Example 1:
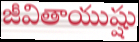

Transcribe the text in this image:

జీవితాయుష్షు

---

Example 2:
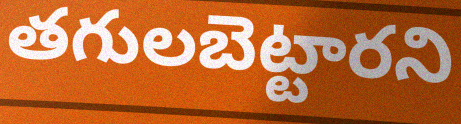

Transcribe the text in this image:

తగులబెట్టారని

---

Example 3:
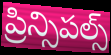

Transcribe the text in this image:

ప్రిన్సిపల్స్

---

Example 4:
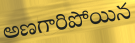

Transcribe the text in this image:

అణగారిపోయిన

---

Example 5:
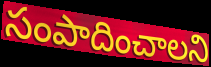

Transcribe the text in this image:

సంపాదించాలని